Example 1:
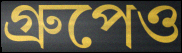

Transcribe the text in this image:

গ্রুপেও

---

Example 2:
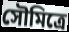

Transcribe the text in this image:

সৌমিত্রে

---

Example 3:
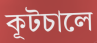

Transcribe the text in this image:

কূটচালে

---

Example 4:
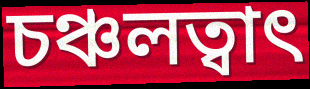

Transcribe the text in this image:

চঞ্চলত্বাৎ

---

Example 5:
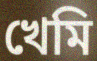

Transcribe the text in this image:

খেমি